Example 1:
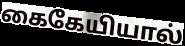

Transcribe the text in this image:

கைகேயியால்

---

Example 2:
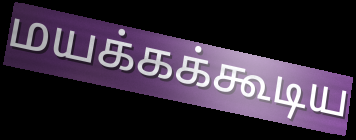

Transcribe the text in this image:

மயக்கக்கூடிய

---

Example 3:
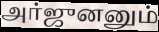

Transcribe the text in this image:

அர்ஜுனனும்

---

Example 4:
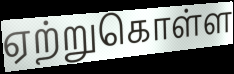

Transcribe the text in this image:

ஏற்றுகொள்ள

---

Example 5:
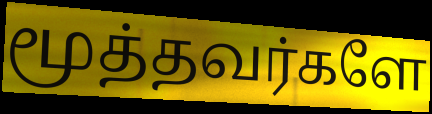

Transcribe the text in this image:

மூத்தவர்களே